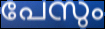
പേസും